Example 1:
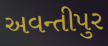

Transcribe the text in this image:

અવન્તીપુર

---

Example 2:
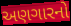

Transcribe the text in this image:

અણગારનો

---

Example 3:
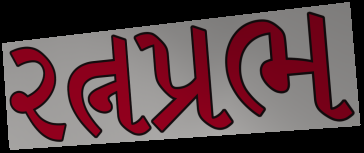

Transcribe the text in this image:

રત્નપ્રભ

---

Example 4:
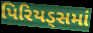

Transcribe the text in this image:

પિરિયડ્સમાં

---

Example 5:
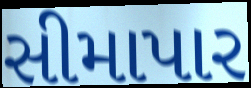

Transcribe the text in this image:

સીમાપાર